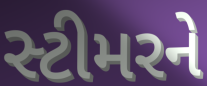
સ્ટીમરને